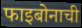
फाइबोनाची